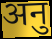
अनु